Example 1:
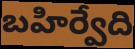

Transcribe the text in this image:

బహిర్వేది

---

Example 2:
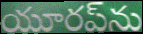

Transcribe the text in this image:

యూరప్‌ను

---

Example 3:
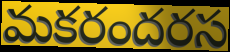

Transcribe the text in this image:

మకరందరస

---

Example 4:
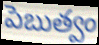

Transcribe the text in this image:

పెబుత్వం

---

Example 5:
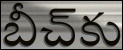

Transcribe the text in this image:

బీచ్‌కు